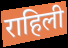
राहिली